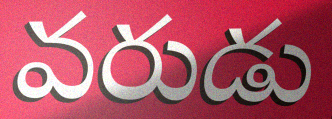
వరుడు